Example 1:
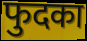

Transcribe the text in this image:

फुदका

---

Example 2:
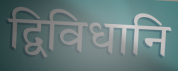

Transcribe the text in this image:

द्विविधानि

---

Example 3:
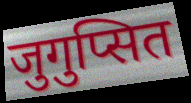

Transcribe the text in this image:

जुगुप्सित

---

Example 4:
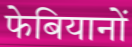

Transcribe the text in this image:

फेबियानों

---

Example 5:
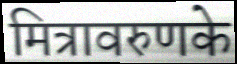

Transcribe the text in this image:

मित्रावरुणके